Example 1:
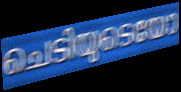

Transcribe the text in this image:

ചെടിയുടെയോ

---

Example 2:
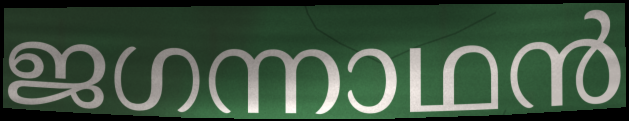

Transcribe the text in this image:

ജഗന്നാഥൻ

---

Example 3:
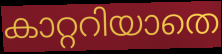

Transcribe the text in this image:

കാറ്ററിയാതെ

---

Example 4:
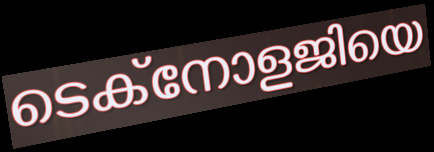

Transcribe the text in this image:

ടെക്‌നോളജിയെ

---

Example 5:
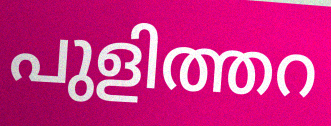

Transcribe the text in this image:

പുളിത്തറ